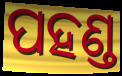
ପହଣ୍ଡ